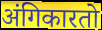
अंगिकारतो